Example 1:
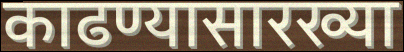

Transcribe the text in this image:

काढण्यासारख्या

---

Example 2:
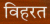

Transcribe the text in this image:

विहरत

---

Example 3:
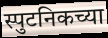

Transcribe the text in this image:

स्पुटनिकच्या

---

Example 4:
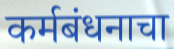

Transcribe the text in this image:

कर्मबंधनाचा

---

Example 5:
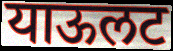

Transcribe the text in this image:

याऊलट